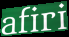
afiri